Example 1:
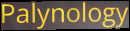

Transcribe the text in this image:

Palynology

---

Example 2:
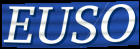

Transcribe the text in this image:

EUSO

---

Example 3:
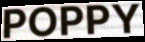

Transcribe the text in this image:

POPPY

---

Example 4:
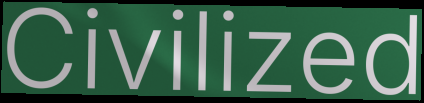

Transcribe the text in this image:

Civilized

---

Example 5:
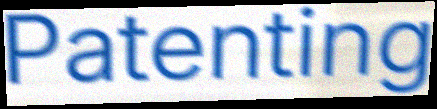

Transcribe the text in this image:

Patenting